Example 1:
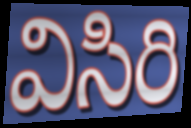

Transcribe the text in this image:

విసిరి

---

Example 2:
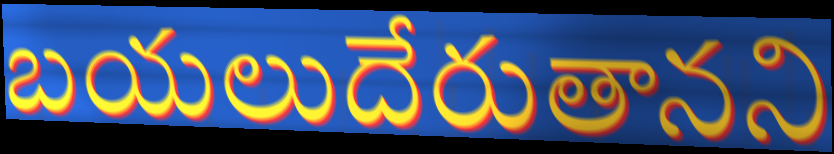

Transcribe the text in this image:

బయలుదేరుతానని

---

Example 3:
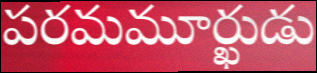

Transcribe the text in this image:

పరమమూర్ఖుడు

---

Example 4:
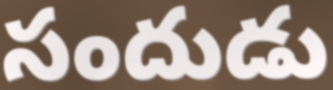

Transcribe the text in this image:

సందుడు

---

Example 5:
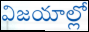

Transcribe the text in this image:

విజయాల్లో